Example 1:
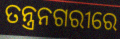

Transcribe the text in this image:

ତନ୍ତ୍ରନଗରୀରେ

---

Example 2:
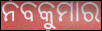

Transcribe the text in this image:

ନବକୁମାର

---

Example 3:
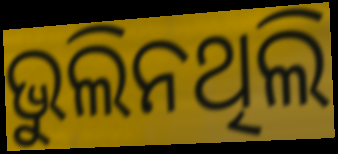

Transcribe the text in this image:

ଭୁଲିନଥିଲି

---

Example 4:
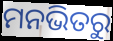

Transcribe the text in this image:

ମନଭିତରୁ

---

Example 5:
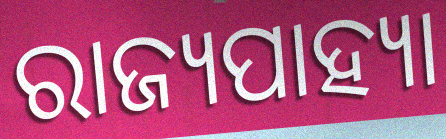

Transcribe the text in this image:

ରାଜ୍ୟପାହ୍ୟା